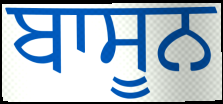
ਬਾਸੂਨ